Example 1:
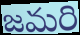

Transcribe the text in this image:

జమరి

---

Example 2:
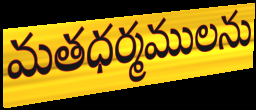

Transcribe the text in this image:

మతధర్మములను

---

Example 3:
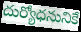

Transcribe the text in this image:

దుర్యోధనునికే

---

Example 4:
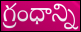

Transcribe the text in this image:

గ్రంధాన్ని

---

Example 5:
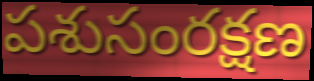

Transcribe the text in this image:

పశుసంరక్షణ